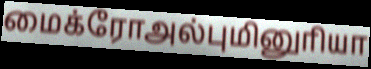
மைக்ரோஅல்புமினுரியா